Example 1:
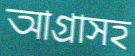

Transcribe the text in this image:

আগ্রাসহ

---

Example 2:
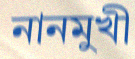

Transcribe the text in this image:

নানমুখী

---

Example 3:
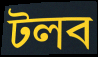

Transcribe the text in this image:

টলব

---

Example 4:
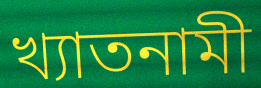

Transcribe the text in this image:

খ্যাতনামী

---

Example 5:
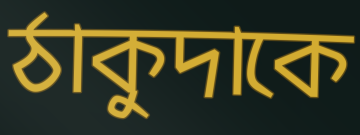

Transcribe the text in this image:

ঠাকুদাকে